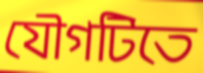
যৌগটিতে